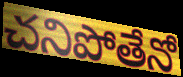
చనిపోతేనో